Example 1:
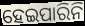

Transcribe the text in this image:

ହେଇପାରିନି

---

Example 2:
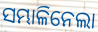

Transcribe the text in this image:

ସମ୍ଭାଳିନେଲା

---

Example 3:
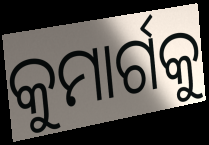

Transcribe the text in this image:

କୁମାର୍ଗକୁ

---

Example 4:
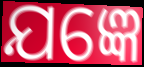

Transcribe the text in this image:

ଯଜ୍ଞେ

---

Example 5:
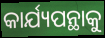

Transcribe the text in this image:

କାର୍ଯ୍ୟପନ୍ଥାକୁ